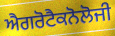
ਐਗਰੋਟੈਕਨੋਲੋਜੀ